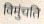
विमुंचति